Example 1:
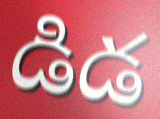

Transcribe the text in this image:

డిడ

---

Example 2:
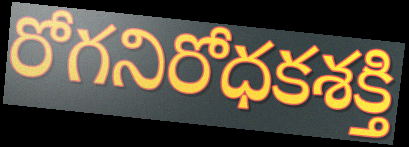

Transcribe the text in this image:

రోగనిరోధకశక్తి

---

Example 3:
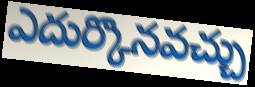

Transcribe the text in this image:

ఎదుర్కొనవచ్చు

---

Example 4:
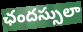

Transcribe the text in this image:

ఛందస్సులా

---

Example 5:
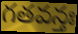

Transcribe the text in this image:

గతవన్తః